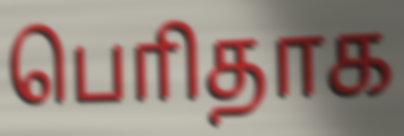
பெரிதாக